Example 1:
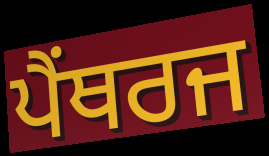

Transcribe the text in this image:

ਪੈਂਥਰਜ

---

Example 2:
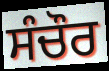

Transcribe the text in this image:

ਸੰਚੌਰ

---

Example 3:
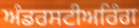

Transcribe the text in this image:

ਅੰਡਰਸਟੀਅਰਿੰਗ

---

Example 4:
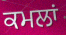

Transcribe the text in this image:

ਕਮਲਾਂ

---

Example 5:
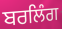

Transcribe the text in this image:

ਬਰਲਿੰਗ